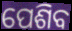
ପେଶିବ